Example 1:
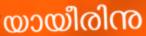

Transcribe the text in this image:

യായീരിനു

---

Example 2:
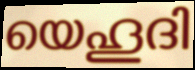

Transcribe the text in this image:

യെഹൂദി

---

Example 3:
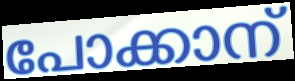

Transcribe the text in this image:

പോക്കാന്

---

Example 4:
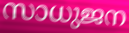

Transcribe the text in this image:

സാധുജന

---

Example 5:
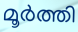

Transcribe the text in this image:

മൂർത്തി